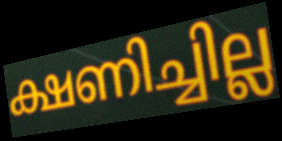
ക്ഷണിച്ചില്ല